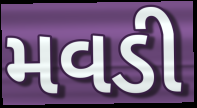
મવડી